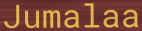
Jumalaa